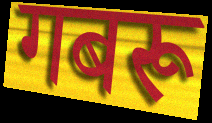
गबरू